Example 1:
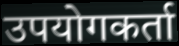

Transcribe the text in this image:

उपयोगकर्ता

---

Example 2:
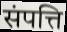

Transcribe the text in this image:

संपत्ति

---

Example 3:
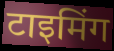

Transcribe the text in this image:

टाइमिंग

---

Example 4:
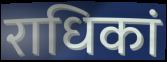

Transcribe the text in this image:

राधिकां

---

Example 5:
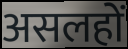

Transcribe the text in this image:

असलहों